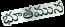
భూతమున